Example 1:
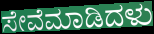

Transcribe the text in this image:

ಸೇವೆಮಾಡಿದಳು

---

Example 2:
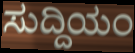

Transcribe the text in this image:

ಸುದ್ದಿಯಂ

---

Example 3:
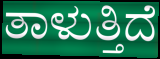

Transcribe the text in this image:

ತಾಳುತ್ತಿದೆ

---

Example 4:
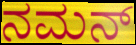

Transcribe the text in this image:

ನಮನ್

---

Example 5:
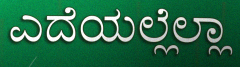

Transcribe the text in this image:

ಎದೆಯಲ್ಲೆಲ್ಲಾ